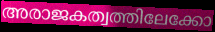
അരാജകത്വത്തിലേക്കോ